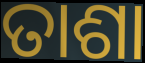
ତାଶା